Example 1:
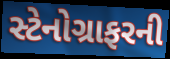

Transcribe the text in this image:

સ્ટેનોગ્રાફરની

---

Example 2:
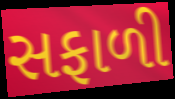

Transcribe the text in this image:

સફાળી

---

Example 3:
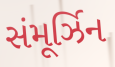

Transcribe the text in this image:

સંમૂર્ઝિન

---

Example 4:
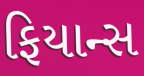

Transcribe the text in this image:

ફિયાન્સ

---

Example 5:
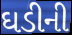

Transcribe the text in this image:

ઘડીની